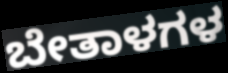
ಬೇತಾಳಗಳ